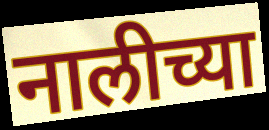
नालीच्या